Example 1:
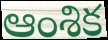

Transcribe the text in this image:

ఆంశిక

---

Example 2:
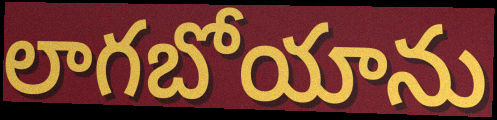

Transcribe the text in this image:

లాగబోయాను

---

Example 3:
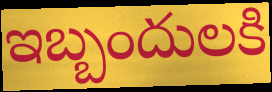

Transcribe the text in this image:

ఇబ్బందులకి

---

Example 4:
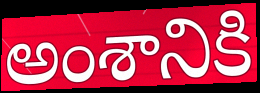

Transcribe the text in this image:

అంశానికి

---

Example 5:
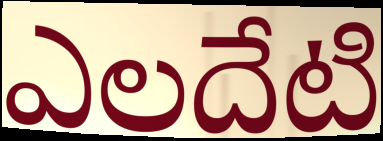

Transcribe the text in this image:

ఎలదేటి